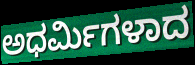
ಅಧರ್ಮಿಗಳಾದ